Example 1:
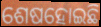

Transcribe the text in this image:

ଶେଷହୋଇଛି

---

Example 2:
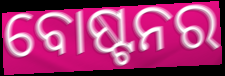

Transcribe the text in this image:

ବୋଷ୍ଟନର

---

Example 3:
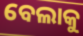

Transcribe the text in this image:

ବେଲାକୁ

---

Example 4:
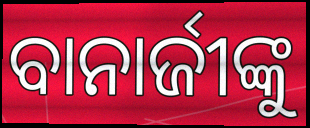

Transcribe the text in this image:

ବାନାର୍ଜୀଙ୍କୁ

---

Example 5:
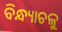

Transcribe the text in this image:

ବିନ୍ଧ୍ୟାଚଳୁ